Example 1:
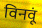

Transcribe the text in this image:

विनवूं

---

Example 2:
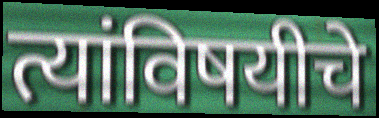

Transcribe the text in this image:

त्यांविषयीचे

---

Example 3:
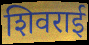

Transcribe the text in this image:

शिवराई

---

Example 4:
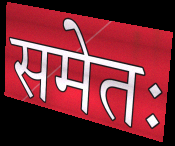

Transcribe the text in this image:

समेतः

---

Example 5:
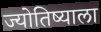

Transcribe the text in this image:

ज्योतिष्याला